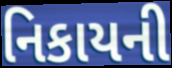
નિકાયની